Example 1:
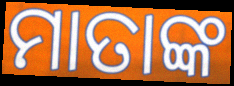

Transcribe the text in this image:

ମାତାଙ୍କ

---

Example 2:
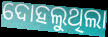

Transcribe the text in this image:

ଦୋହଲୁଥିଲା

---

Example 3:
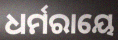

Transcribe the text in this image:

ଧର୍ମରାୟେ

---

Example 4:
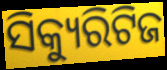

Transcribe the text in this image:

ସିକ୍ୟୁରିଟିଜ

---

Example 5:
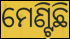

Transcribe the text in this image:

ମେଣ୍ଟିଛି